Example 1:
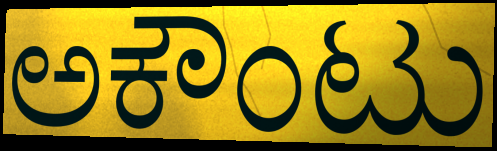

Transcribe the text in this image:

ಅಕೌಂಟು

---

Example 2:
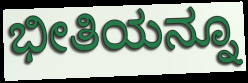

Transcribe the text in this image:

ಭೀತಿಯನ್ನೂ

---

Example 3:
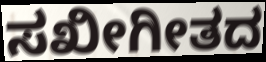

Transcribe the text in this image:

ಸಖೀಗೀತದ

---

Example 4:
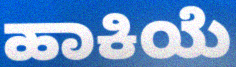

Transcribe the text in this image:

ಹಾಕಿಯೆ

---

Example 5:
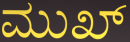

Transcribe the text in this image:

ಮುಖ್